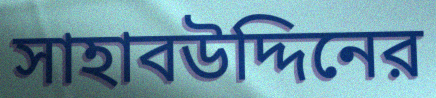
সাহাবউদ্দিনের